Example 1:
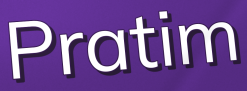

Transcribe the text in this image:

Pratim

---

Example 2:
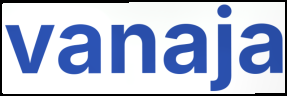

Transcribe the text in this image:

vanaja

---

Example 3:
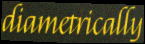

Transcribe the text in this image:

diametrically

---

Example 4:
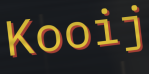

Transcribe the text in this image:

Kooij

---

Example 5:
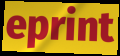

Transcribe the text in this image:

eprint